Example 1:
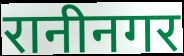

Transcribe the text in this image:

रानीनगर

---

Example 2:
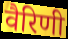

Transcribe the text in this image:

वैरिणी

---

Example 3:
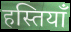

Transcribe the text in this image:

हस्तियॉं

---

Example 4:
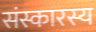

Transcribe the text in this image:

संस्कारस्य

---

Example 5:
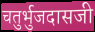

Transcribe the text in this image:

चतुर्भुजदासजी